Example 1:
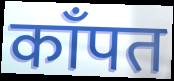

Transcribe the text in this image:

काँपत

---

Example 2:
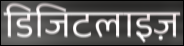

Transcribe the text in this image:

डिजिटलाइज़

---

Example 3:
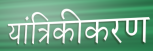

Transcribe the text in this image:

यांत्रिकीकरण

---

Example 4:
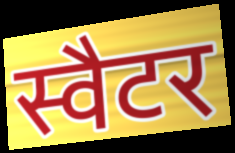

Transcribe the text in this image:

स्वैटर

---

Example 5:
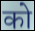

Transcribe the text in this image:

को